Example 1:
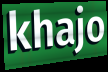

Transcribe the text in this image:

khajo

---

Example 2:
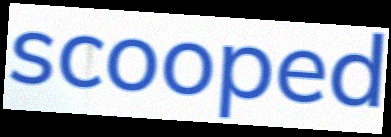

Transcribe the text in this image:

scooped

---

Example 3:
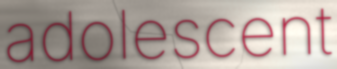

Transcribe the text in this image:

adolescent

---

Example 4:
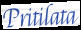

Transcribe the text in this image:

Pritilata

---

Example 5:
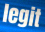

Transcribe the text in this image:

legit